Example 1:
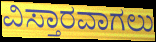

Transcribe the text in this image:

ವಿಸ್ತಾರವಾಗಲು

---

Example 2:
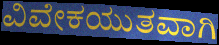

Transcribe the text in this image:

ವಿವೇಕಯುತವಾಗಿ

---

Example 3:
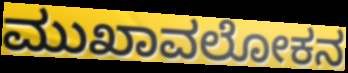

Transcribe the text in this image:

ಮುಖಾವಲೋಕನ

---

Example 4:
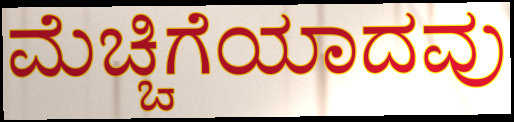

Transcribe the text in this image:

ಮೆಚ್ಚಿಗೆಯಾದವು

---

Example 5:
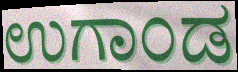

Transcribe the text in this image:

ಉಗಾಂಡ